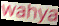
wahya